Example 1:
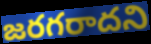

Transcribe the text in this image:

జరగరాదని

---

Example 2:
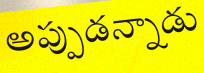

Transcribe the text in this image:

అప్పుడన్నాడు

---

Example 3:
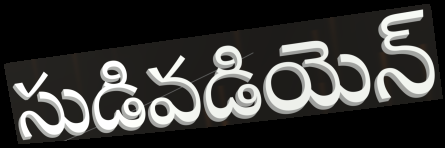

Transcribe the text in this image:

సుడివడియెన్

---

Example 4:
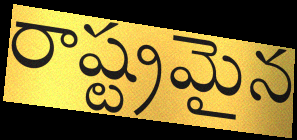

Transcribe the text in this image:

రాష్ట్రమైన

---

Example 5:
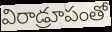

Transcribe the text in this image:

విరాడ్రూపంతో